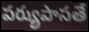
పర్యుపాసతే